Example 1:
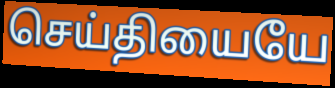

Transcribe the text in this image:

செய்தியையே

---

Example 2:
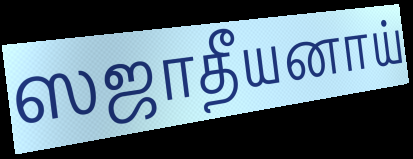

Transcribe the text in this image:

ஸஜாதீயனாய்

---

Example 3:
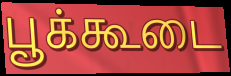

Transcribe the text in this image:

பூக்கூடை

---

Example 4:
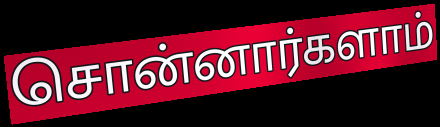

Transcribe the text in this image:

சொன்னார்களாம்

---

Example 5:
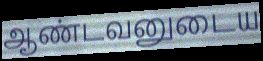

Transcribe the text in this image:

ஆண்டவனுடைய